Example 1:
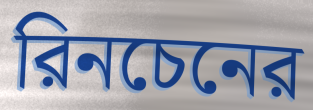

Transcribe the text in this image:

রিনচেনের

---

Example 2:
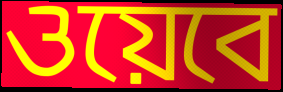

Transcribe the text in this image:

ওয়েবে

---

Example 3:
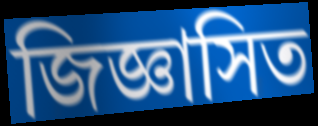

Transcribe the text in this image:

জিজ্ঞাসিত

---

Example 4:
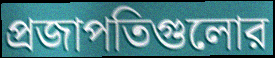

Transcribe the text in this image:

প্রজাপতিগুলোর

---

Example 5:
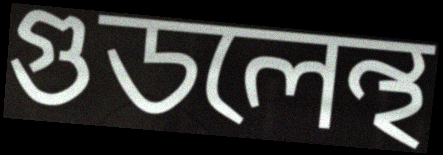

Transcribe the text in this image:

গুডলেন্থ